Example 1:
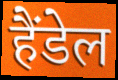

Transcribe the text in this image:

हैंडेल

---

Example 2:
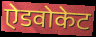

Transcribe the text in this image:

ऐडवोकेट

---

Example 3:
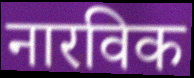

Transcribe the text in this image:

नारविक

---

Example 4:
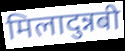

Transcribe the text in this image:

मिलादुन्नबी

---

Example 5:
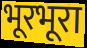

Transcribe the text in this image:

भूरभूरा